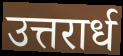
उत्तरार्ध